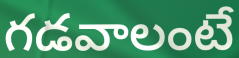
గడవాలంటే